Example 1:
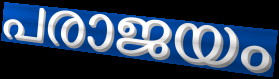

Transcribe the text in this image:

പരാജയം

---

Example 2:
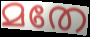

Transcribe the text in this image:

മതേ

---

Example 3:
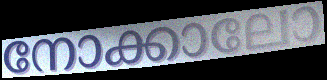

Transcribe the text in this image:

നോക്കാലോ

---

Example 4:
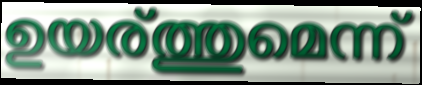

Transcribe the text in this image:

ഉയര്ത്തുമെന്ന്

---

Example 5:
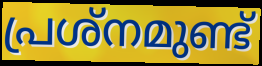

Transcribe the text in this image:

പ്രശ്നമുണ്ട്